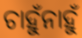
ଚାହୁଁନାହୁଁ